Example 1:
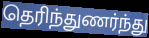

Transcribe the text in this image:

தெரிந்துணர்ந்து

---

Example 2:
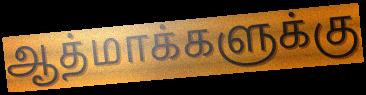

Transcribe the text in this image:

ஆத்மாக்களுக்கு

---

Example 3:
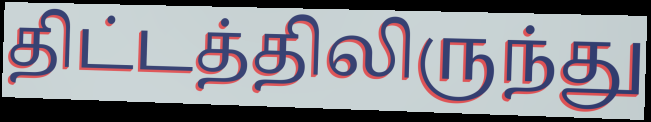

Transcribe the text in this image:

திட்டத்திலிருந்து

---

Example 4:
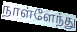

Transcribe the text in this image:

நாள்ளேந்து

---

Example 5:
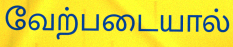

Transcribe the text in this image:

வேற்படையால்